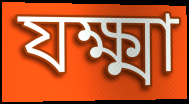
যক্ষ্মা